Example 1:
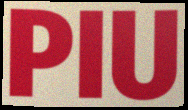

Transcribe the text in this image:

PIU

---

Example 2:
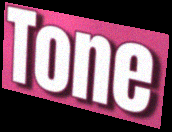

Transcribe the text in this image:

Tone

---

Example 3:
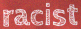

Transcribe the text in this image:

racist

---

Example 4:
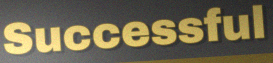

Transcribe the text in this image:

Successful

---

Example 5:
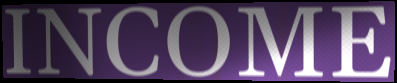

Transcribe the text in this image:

INCOME